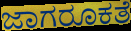
ಜಾಗರೂಕತೆ